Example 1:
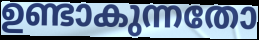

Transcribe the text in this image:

ഉണ്ടാകുന്നതോ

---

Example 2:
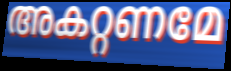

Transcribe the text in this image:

അകറ്റണമേ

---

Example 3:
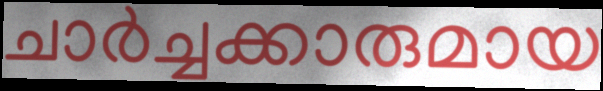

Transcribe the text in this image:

ചാർച്ചക്കാരുമായ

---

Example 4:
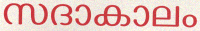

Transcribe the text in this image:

സദാകാലം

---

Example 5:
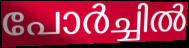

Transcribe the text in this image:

പോർച്ചിൽ